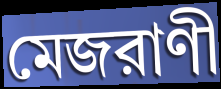
মেজরাণী